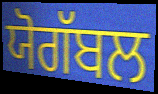
ਯੋਗੱਬਲ